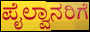
ಪೈಲ್ವಾನರಿಗೆ